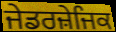
ਜੇਡਰਜ਼ੇਜਿਕ